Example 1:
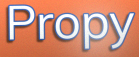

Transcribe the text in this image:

Propy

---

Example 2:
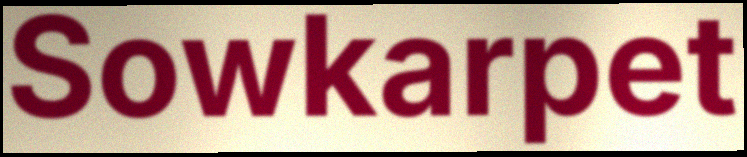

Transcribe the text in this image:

Sowkarpet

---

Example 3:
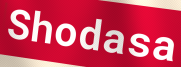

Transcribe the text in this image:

Shodasa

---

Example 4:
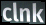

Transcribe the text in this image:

clnk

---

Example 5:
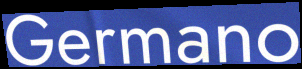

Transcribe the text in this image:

Germano